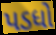
પડધો